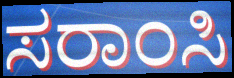
ಸರಾಂಸಿ